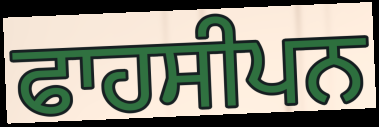
ਫਾਹਸੀਪਨ